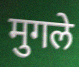
मुगले